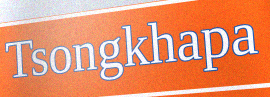
Tsongkhapa